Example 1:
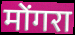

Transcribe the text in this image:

मोंगरा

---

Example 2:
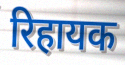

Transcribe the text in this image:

रिहायक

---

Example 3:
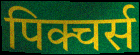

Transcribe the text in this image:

पिक्चर्स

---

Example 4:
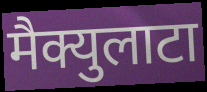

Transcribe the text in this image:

मैक्युलाटा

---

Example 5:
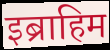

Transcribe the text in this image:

इब्राहिम